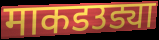
माकडउड्या